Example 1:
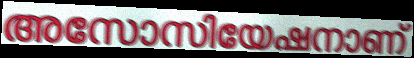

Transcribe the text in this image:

അസോസിയേഷനാണ്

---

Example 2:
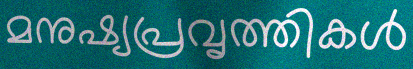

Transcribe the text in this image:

മനുഷ്യപ്രവൃത്തികൾ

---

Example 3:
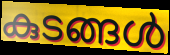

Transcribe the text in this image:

കുടങ്ങൾ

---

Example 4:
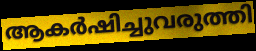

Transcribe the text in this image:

ആകർഷിച്ചുവരുത്തി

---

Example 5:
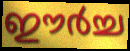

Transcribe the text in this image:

ഈർച്ച